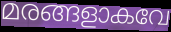
മരങ്ങളാകവേ